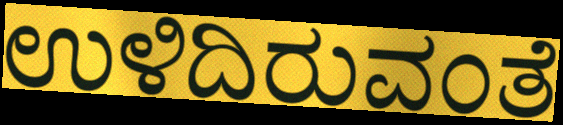
ಉಳಿದಿರುವಂತೆ